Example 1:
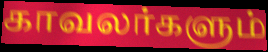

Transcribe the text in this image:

காவலர்களும்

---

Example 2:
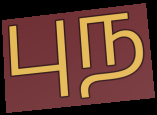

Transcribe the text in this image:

புந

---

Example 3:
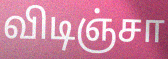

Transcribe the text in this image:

விடிஞ்சா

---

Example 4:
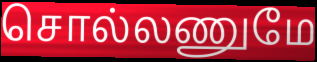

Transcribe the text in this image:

சொல்லணுமே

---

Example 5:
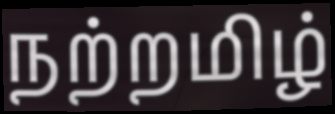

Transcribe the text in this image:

நற்றமிழ்